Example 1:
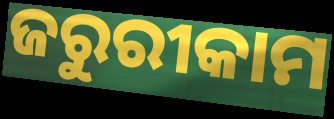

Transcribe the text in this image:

ଜରୁରୀକାମ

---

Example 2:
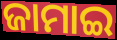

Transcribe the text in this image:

ଜାମାଇ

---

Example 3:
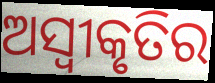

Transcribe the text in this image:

ଅସ୍ୱୀକୃତିର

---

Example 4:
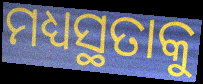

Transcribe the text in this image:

ମଧ୍ୟସ୍ଥତାକୁ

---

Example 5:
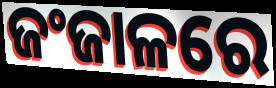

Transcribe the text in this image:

ଜଂଜାଳରେ